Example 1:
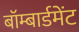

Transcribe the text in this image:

बॉम्बार्डमेंट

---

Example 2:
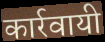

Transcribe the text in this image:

कार्रवायी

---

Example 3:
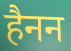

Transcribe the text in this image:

हैनन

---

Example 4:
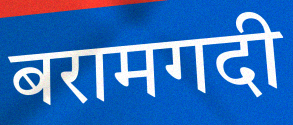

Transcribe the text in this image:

बरामगदी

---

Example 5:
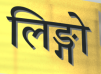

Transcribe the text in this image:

लिङ्गो